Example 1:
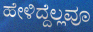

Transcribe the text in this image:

ಹೇಳಿದ್ದೆಲ್ಲವೂ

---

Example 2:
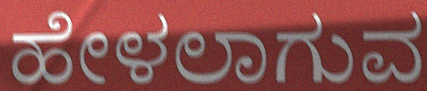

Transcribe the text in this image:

ಹೇಳಲಾಗುವ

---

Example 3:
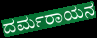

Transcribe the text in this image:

ದರ್ಮರಾಯನ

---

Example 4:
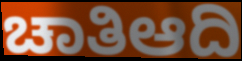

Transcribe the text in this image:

ಚಾತಿಆದಿ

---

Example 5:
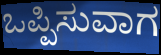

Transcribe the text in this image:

ಒಪ್ಪಿಸುವಾಗ